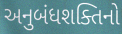
અનુબંધશક્તિનો